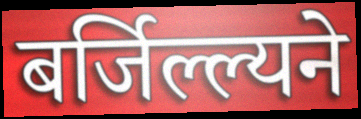
बर्जिल्ल्यने